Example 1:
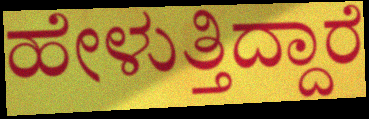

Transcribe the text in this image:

ಹೇಳುತ್ತಿದ್ದಾರೆ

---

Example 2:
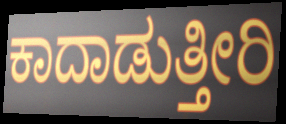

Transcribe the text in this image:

ಕಾದಾಡುತ್ತೀರಿ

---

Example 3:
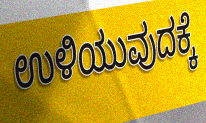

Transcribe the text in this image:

ಉಳಿಯುವುದಕ್ಕೆ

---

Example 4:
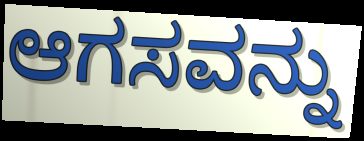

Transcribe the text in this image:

ಆಗಸವನ್ನು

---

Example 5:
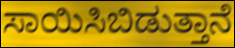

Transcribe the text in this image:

ಸಾಯಿಸಿಬಿಡುತ್ತಾನೆ